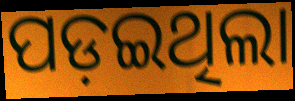
ପଡ଼ଇଥିଲା